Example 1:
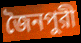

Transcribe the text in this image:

জৈনপুরী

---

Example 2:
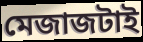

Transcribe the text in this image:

মেজাজটাই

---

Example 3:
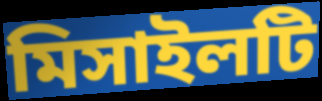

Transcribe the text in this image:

মিসাইলটি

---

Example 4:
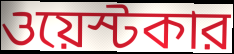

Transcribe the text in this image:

ওয়েস্টকার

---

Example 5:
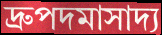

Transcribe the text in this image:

দ্রুপদমাসাদ্য